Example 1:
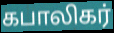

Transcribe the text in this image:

கபாலிகர்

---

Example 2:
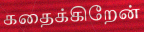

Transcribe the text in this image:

கதைக்கிறேன்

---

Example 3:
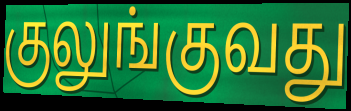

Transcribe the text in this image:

குலுங்குவது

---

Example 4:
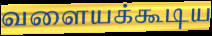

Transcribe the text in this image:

வளையக்கூடிய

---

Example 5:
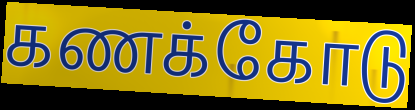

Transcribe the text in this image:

கணக்கோடு